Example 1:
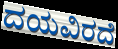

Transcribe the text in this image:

ದಯವಿರದೆ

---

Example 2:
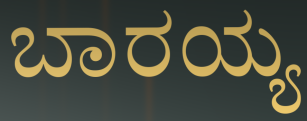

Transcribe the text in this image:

ಬಾರಯ್ಯ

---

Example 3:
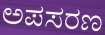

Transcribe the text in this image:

ಅಪಸರಣ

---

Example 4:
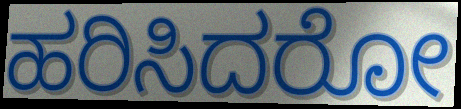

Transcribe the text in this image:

ಹರಿಸಿದರೋ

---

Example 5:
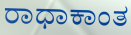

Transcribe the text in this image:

ರಾಧಾಕಾಂತ